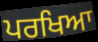
ਪਰਖਿਆ